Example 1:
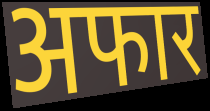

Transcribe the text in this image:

अफार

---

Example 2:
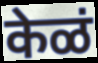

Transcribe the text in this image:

केळं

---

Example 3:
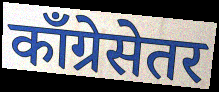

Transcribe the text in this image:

काँग्रेसेतर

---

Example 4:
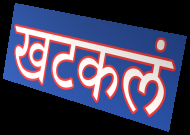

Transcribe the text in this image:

खटकलं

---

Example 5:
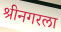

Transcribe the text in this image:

श्रीनगरला